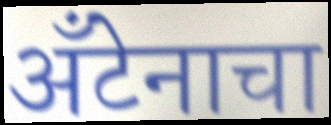
अँटेनाचा